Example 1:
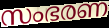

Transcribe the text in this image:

സംഭരണ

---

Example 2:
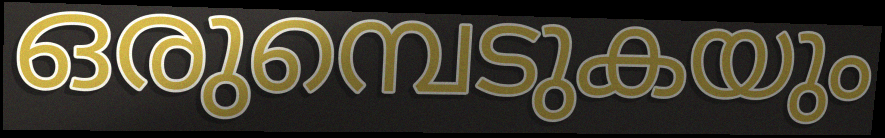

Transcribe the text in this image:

ഒരുമ്പെടുകയും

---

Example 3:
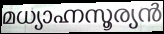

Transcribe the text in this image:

മധ്യാഹ്നസൂര്യൻ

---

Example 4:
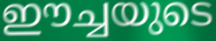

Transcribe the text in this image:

ഈച്ചയുടെ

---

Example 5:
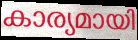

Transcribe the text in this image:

കാര്യമായി